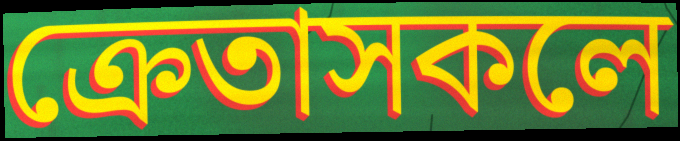
ক্ৰেতাসকলে